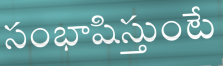
సంభాషిస్తుంటే